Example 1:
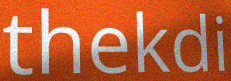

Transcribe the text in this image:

thekdi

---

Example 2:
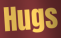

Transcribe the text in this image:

Hugs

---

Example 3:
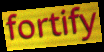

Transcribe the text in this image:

fortify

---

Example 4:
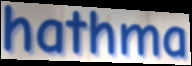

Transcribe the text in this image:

hathma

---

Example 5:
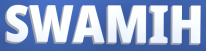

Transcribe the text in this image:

SWAMIH